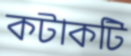
কটাকটি